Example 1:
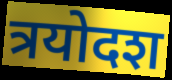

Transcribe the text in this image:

त्रयोदश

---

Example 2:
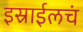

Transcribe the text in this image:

इस्राईलचं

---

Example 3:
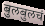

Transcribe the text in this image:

बुलबुलचं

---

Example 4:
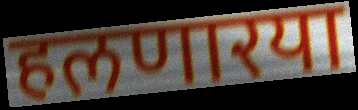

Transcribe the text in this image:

हलणारया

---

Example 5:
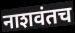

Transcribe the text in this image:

नाशवंतच